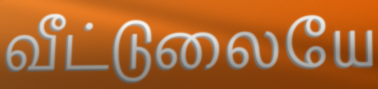
வீட்டுலையே